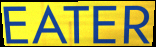
EATER